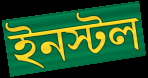
ইনস্টল